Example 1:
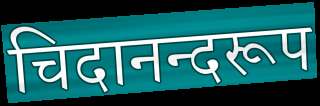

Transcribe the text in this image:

चिदानन्दरूप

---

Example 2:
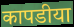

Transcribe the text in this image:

कापडीया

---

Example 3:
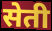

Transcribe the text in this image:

सेती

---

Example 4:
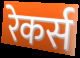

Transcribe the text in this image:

रेकर्स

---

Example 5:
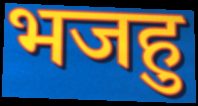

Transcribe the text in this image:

भजहु